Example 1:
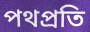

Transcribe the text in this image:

পথপ্রতি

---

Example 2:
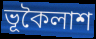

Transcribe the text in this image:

ভূকৈলাশ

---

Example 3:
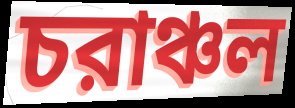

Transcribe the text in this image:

চরাঞ্চল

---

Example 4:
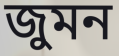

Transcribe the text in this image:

জুমন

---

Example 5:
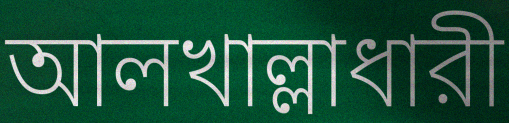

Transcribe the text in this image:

আলখাল্লাধারী